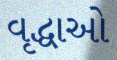
વૃદ્ધાઓ